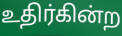
உதிர்கின்ற